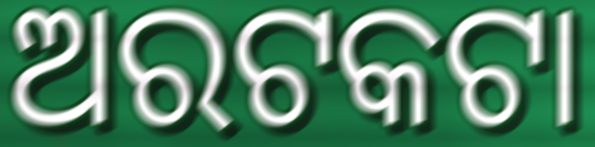
ଅରଟକଟା